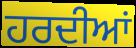
ਹਰਦੀਆਂ